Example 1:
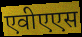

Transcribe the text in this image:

एवीएएस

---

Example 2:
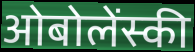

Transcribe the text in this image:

ओबोलेंस्की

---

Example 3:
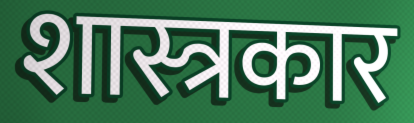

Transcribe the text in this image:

शास्त्रकार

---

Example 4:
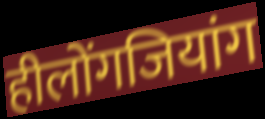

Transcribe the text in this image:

हीलोंगजियांग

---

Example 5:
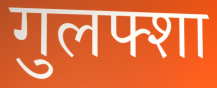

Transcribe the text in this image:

गुलफ्शा